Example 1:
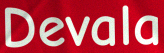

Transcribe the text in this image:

Devala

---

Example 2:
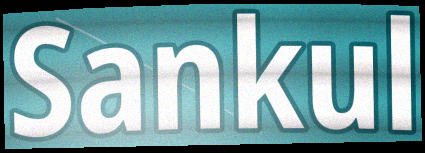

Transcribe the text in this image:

Sankul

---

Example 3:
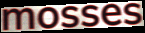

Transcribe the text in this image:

mosses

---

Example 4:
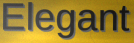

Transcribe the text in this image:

Elegant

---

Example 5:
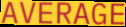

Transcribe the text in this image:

AVERAGE